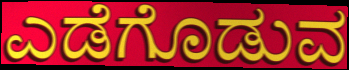
ಎಡೆಗೊಡುವ